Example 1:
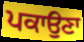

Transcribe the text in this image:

ਪਕਾਉਣਾ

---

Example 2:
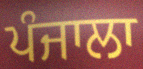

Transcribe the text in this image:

ਪੰਜਾਲਾ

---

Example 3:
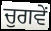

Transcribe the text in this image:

ਚੁਗਵੇਂ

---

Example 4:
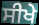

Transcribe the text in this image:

ਸੀਖੇ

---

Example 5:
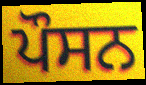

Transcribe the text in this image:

ਪੌਸਨ